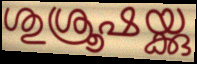
ശുശ്രൂഷയ്ക്കു